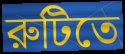
রুটিতে